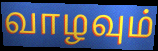
வாழவும்